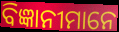
ବିଜ୍ଞାନୀମାନେ